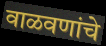
वाळवणांचे